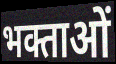
भक्ताओं